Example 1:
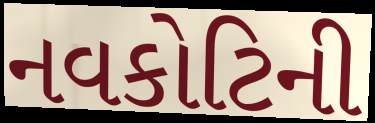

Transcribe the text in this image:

નવકોટિની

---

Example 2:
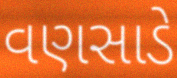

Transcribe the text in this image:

વણસાડે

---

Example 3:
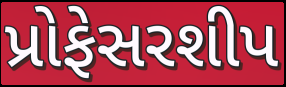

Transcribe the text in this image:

પ્રોફેસરશીપ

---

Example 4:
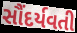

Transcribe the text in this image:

સૌંદર્યવતી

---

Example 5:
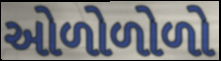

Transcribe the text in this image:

ઓળોળોળો